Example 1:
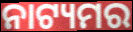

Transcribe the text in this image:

ନାଟ୍ୟମର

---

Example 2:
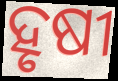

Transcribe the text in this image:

ହୃଷୀ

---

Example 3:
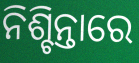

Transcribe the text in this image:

ନିଶ୍ଚିନ୍ତାରେ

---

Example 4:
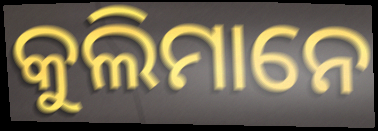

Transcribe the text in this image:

କୁଲିମାନେ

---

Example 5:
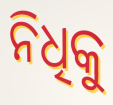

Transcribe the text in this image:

ନିଧିକୁ